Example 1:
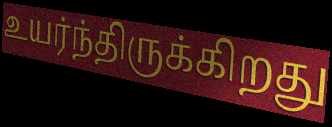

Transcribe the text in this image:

உயர்ந்திருக்கிறது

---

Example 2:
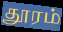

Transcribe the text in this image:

தூரம்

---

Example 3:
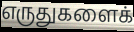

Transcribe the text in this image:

எருதுகளைக்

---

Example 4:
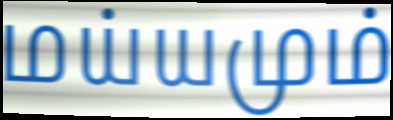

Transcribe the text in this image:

மய்யமும்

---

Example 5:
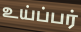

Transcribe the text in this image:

உய்ப்பர்